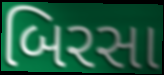
બિરસા